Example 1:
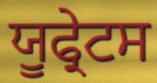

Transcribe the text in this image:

ਯੂਫ੍ਰੇਟਸ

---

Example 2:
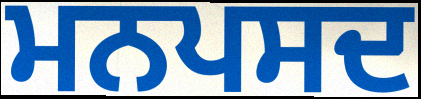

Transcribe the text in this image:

ਮਨਪਸਦ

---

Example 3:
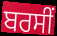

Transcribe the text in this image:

ਬਰਸੀਂ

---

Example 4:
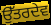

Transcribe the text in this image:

ਉੱਤਰਦੇਵ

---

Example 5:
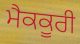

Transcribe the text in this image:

ਮੈਕਕੂਰੀ